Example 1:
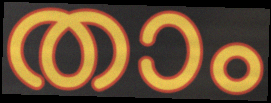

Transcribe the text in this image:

താം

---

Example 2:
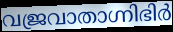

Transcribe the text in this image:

വജ്രവാതാഗ്നിഭിർ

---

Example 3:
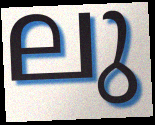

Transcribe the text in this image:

ലു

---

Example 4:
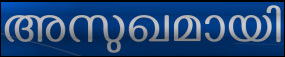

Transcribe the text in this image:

അസുഖമായി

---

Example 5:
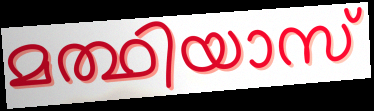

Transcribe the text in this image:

മത്ഥിയാസ്